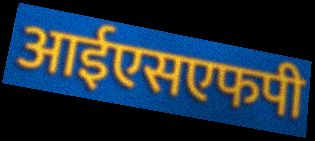
आईएसएफपी